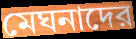
মেঘনাদের